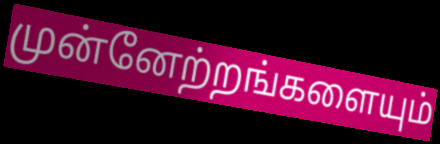
முன்னேற்றங்களையும்